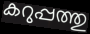
കറുപ്പത്തു